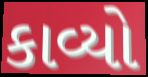
કાવ્યો